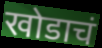
खोडाचं